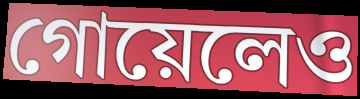
গোয়েলেও